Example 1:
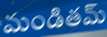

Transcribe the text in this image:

మండితమ్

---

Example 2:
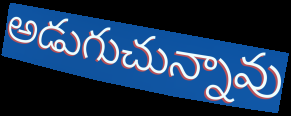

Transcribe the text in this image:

అడుగుచున్నావు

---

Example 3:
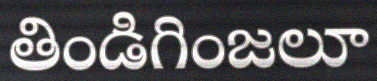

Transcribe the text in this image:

తిండిగింజలూ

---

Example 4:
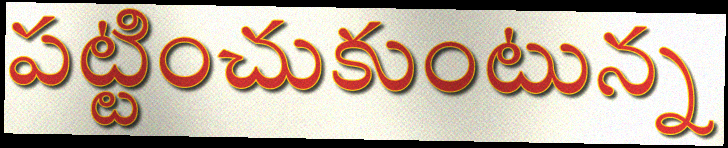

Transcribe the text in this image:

పట్టించుకుంటున్న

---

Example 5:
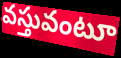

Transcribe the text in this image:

వస్తువంటూ